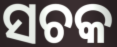
ସଚକ